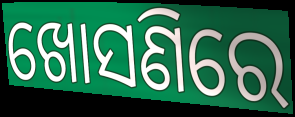
ଖୋସଣିରେ